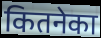
कितनेका